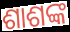
ଶାଶଙ୍କ